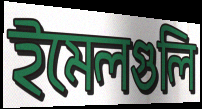
ইমেলগুলি